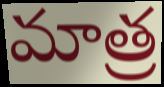
మాత్ర